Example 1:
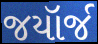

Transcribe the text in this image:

જયૉર્જ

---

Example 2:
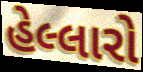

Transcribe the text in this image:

હેલ્લારો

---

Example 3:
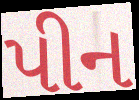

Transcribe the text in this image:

પીન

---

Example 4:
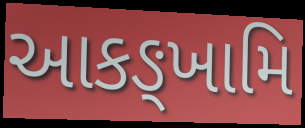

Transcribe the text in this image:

આકઙ્ખામિ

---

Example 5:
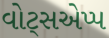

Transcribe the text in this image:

વોટ્સએપ્પ